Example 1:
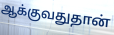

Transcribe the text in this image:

ஆக்குவதுதான்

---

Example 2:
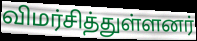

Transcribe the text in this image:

விமர்சித்துள்ளனர்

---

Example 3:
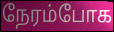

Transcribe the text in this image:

நேரம்போக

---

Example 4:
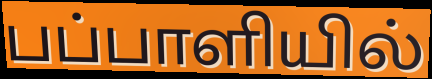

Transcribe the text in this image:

பப்பாளியில்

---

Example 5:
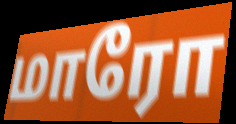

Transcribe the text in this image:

மாரோ